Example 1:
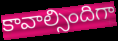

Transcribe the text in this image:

కావాల్సిందిగా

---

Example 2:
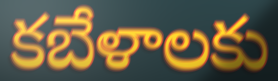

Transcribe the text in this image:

కబేళాలకు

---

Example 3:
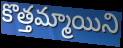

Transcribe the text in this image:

కొత్తమ్మాయిని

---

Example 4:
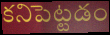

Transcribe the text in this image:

కనిపెట్టడం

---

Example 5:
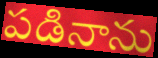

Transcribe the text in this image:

పడినాను